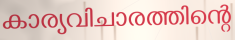
കാര്യവിചാരത്തിന്റെ